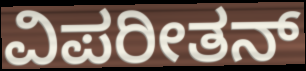
ವಿಪರೀತನ್